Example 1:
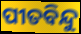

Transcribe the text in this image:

ପୀତବିନ୍ଦୁ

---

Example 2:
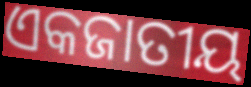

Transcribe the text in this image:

ଏକଜାତୀୟ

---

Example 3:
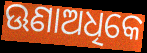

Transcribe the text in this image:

ଊଣାଅଧିକେ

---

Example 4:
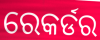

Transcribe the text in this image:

ରେକର୍ଡର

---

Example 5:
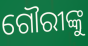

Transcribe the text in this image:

ଗୌରୀଙ୍କୁ